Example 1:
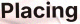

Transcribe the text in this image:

Placing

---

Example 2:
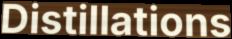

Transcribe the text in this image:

Distillations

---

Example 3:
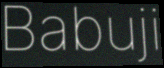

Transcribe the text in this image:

Babuji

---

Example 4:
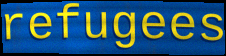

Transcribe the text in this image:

refugees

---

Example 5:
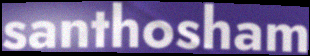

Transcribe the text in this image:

santhosham